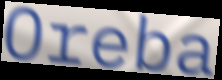
Oreba